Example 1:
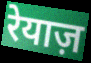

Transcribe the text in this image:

रेयाज़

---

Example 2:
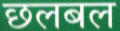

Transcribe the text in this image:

छलबल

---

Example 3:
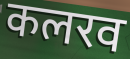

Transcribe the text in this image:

कलरव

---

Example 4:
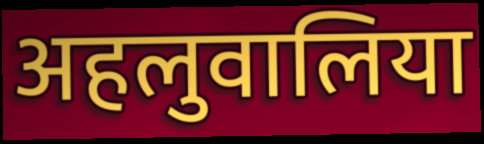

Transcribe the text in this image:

अहलुवालिया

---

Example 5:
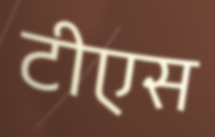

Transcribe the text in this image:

टीएस